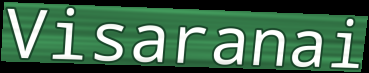
Visaranai